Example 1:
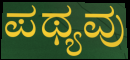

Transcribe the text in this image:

ಪಥ್ಯವು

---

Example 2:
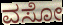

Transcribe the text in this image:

ವಸೋ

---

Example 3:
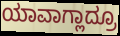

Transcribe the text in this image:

ಯಾವಾಗ್ಲಾದ್ರೂ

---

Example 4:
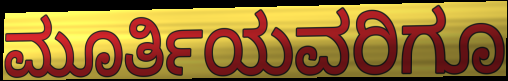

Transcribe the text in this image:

ಮೂರ್ತಿಯವರಿಗೂ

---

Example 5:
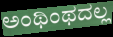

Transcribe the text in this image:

ಅಂಥಿಂಥದಲ್ಲ